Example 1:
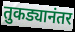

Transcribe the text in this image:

तुकड्यानंतर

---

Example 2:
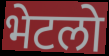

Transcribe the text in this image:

भेटलो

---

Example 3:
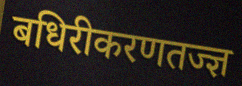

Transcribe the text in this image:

बधिरीकरणतज्ज्ञ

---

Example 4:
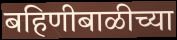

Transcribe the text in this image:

बहिणीबाळीच्या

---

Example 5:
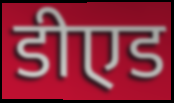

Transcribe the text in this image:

डीएड